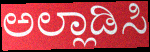
ಅಲ್ಲಾಡಿಸಿ